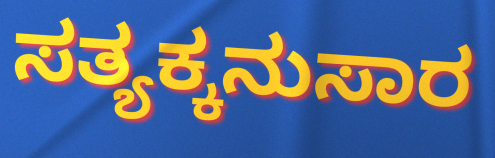
ಸತ್ಯಕ್ಕನುಸಾರ